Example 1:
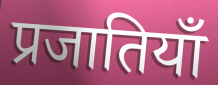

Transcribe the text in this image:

प्रजातियाँ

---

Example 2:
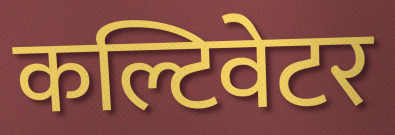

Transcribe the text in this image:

कल्टिवेटर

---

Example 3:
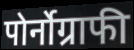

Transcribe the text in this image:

पोर्नोग्राफी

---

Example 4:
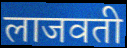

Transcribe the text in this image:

लाजवती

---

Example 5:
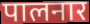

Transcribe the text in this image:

पालनार